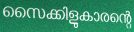
സൈക്കിളുകാരന്റെ